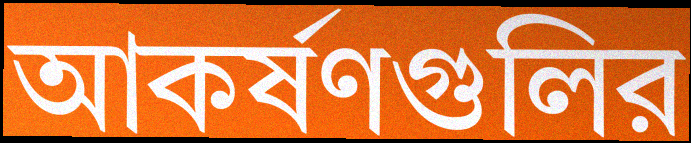
আকর্ষণগুলির